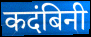
कदंबिनी